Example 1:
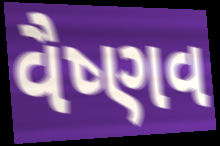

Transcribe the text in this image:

વૈષ્ણવ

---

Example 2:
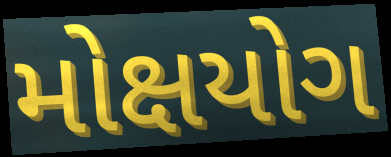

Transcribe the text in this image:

મોક્ષયોગ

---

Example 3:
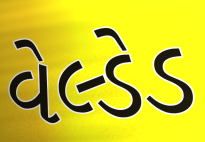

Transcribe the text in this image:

વેલ્ડેડ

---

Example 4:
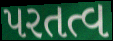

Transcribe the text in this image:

પરતત્વ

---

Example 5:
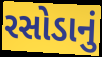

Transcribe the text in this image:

રસોડાનું